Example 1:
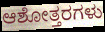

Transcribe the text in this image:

ಆಶೋತ್ತರಗಳು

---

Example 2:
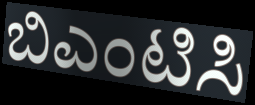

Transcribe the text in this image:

ಬಿಎಂಟಿಸಿ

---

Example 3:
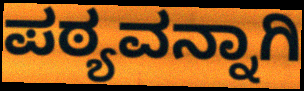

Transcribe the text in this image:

ಪಠ್ಯವನ್ನಾಗಿ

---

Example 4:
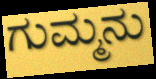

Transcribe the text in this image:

ಗುಮ್ಮನು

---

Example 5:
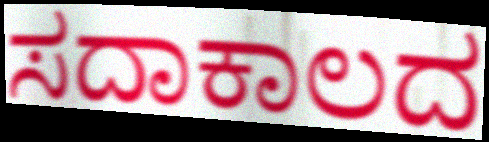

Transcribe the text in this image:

ಸದಾಕಾಲದ